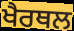
ਖੈਰਥਲ